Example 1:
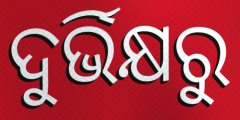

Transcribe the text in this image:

ଦୁର୍ଭିକ୍ଷରୁ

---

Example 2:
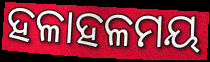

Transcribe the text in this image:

ହଳାହଳମୟ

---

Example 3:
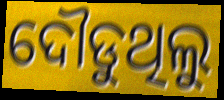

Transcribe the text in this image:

ଦୌଡୁଥିଲୁ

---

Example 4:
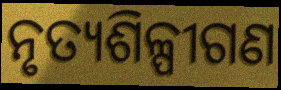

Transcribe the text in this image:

ନୃତ୍ୟଶିଳ୍ପୀଗଣ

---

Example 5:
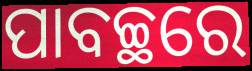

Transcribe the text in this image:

ପାବଚ୍ଛରେ